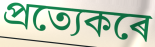
প্ৰত্যেকৰে